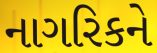
નાગરિકને